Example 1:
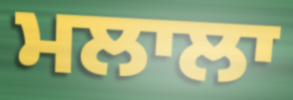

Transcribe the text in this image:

ਮਲਾਲਾ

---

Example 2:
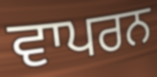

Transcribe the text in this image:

ਵਾਪਰਨ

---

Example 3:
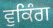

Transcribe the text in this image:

ਵੁਕਿੰਗ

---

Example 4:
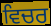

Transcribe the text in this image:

ਵਿਚਰ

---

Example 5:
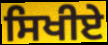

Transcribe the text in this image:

ਸਿਖੀਏ